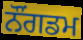
ਨੌਂਗਡਮ